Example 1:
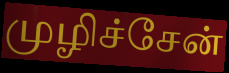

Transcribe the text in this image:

முழிச்சேன்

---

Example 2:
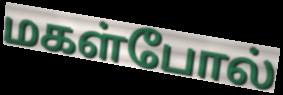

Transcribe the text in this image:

மகள்போல்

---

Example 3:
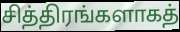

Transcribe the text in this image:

சித்திரங்களாகத்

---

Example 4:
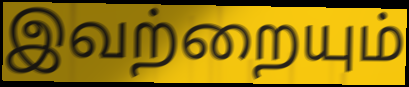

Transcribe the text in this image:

இவற்றையும்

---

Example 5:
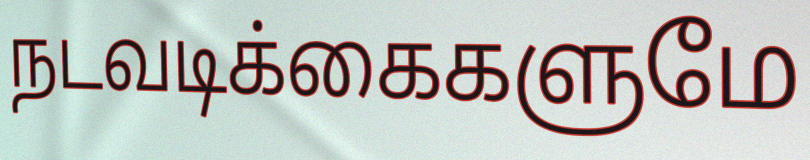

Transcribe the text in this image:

நடவடிக்கைகளுமே